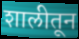
शालीतून